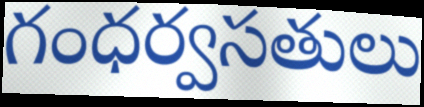
గంధర్వసతులు